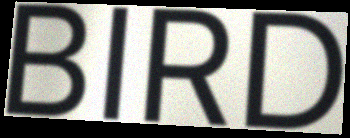
BIRD